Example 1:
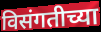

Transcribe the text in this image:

विसंगतीच्या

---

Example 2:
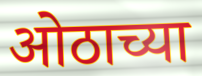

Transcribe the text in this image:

ओठाच्या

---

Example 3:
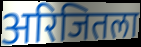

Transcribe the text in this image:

अरिजितला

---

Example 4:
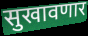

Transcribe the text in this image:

सुखावणार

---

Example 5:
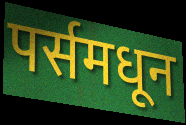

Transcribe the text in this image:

पर्समधून